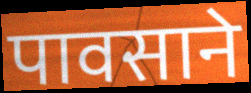
पावसाने